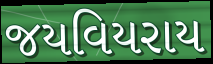
જયવિયરાય